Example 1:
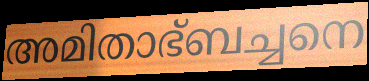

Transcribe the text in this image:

അമിതാഭ്ബച്ചനെ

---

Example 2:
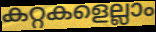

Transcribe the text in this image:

കറ്റകളെല്ലാം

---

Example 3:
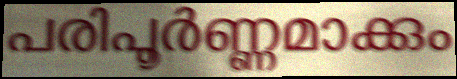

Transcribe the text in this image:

പരിപൂർണ്ണമാക്കും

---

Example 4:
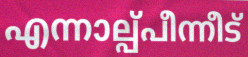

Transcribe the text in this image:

എന്നാല്പ്പീന്നീട്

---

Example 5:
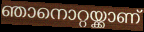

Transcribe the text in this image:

ഞാനൊറ്റയ്ക്കാണ്